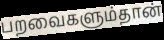
பறவைகளும்தான்